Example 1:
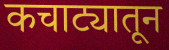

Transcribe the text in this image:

कचाट्यातून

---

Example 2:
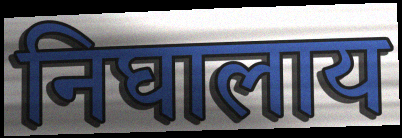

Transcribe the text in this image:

निघालाय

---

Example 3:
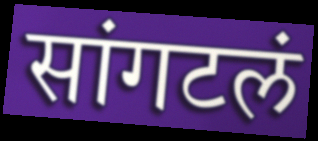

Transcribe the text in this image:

सांगटलं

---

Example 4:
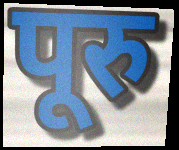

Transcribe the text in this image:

पूरु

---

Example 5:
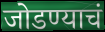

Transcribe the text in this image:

जोडण्याचं